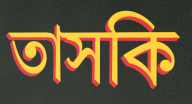
তাসকি